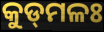
କୁଡ୍‌ମଳଃ